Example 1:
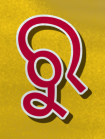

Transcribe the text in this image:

ରୁ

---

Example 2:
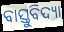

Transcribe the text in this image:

ବାସ୍ତୁବିଦ୍ୟା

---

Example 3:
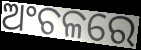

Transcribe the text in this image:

ଅଂଚଳରେ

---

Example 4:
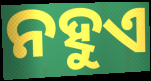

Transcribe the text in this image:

ନହୁଏ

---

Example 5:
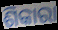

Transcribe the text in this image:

ଶିକାରା